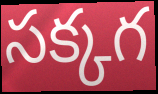
సక్కగ